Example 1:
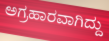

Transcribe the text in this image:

ಅಗ್ರಹಾರವಾಗಿದ್ದು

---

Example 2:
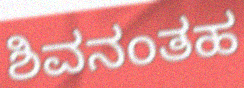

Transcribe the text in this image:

ಶಿವನಂತಹ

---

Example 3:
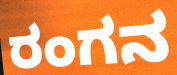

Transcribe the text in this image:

ರಂಗನ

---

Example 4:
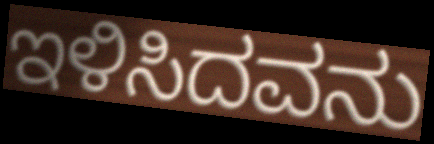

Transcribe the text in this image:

ಇಳಿಸಿದವನು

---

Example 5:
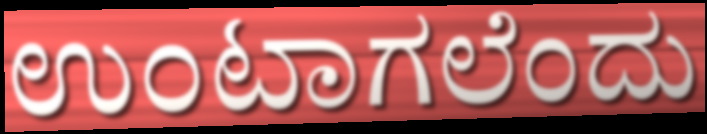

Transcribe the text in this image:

ಉಂಟಾಗಲೆಂದು